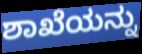
ಶಾಖೆಯನ್ನು